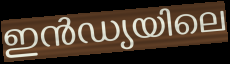
ഇൻഡ്യയിലെ